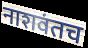
नाशवंतच